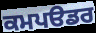
ਕਮਪੳਡਰ